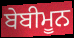
ਬੇਬੀਮੂਨ